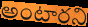
అంటారని